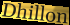
Dhillon